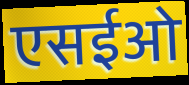
एसईओ